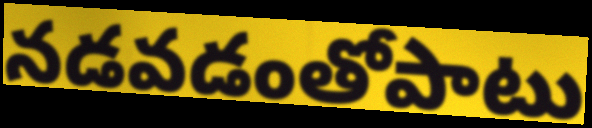
నడవడంతోపాటు